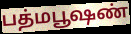
பத்மபூஷண்